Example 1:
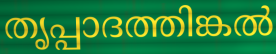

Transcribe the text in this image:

തൃപ്പാദത്തിങ്കൽ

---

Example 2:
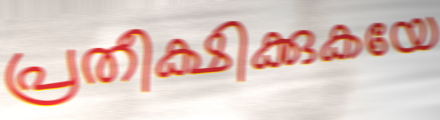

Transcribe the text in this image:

പ്രതീക്ഷിക്കുകയേ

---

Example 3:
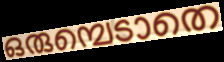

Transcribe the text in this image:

ഒരുമ്പെടാതെ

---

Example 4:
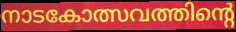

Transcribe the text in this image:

നാടകോത്സവത്തിന്റെ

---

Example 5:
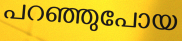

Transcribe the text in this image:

പറഞ്ഞുപോയ